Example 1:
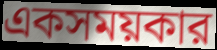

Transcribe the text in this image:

একসময়কার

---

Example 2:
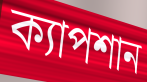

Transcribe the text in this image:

ক্যাপশান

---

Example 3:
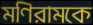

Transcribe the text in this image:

মণিরামকে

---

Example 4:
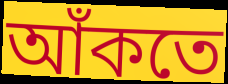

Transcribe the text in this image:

আঁকতে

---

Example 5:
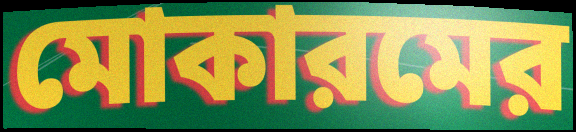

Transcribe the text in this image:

মোকারমের